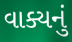
વાક્યનું